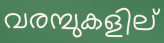
വരമ്പുകളില്